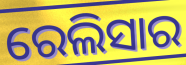
ରେଲିସାର